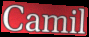
Camil